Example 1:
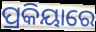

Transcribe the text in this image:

ପ୍ରକିୟାରେ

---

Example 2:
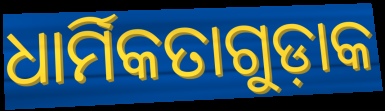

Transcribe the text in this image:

ଧାର୍ମିକତାଗୁଡ଼ାକ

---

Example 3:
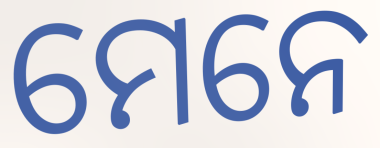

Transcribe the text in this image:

ମେନେ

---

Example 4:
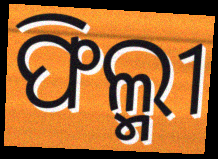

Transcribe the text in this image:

ଫିଲ୍ମୀ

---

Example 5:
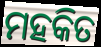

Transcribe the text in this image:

ମହକିତ